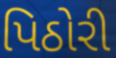
પિઠોરી